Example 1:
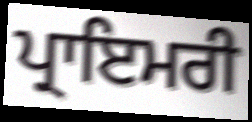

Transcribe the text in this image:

ਪ੍ਰਾਇਮਰੀ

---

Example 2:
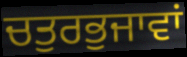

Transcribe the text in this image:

ਚਤੁਰਭੁਜਾਵਾਂ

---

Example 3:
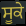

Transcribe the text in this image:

ਸੂਕੇ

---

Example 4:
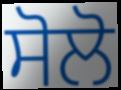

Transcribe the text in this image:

ਸੋਲੋ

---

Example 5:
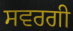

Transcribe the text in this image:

ਸਵਰਗੀ